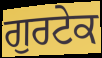
ਗੁਰਟੇਕ